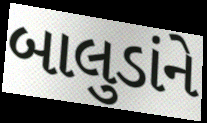
બાલુડાંને